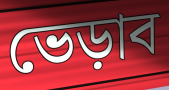
ভেড়াব